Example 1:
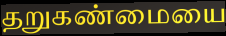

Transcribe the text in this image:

தறுகண்மையை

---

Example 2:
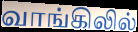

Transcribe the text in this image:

வாங்கிலில்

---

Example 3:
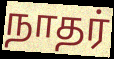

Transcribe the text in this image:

நாதர்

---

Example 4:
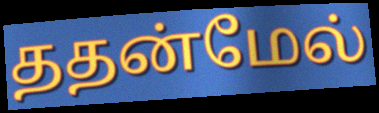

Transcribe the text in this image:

ததன்மேல்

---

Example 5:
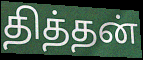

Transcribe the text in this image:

தித்தன்